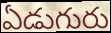
ఏడుగురు